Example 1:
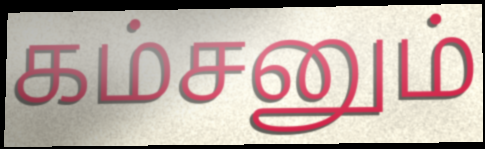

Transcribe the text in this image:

கம்சனும்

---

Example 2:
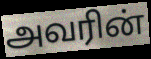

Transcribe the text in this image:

அவரின்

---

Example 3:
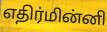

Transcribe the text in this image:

எதிர்மின்னி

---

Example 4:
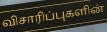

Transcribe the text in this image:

விசாரிப்புகளின்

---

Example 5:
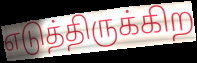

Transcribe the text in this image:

எடுத்திருக்கிற